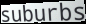
suburbs